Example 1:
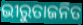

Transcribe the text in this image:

ଭୀରୁତାଜନିତ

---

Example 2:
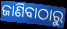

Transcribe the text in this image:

ଜାଣିବାଠାରୁ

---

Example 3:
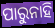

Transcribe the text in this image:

ପାରୁନାହି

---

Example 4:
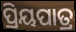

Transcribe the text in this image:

ପ୍ରିୟପାତ୍ର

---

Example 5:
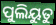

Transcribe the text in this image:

ପୁଲିୟୁତୁ